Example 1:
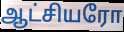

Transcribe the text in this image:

ஆட்சியரோ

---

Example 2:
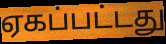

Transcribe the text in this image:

ஏகப்பட்டது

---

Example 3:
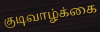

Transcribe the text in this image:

குடிவாழ்க்கை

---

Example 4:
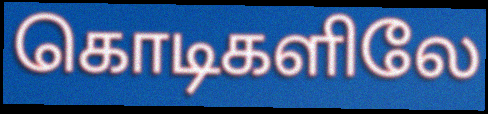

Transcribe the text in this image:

கொடிகளிலே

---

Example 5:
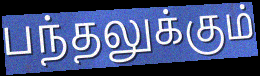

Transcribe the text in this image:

பந்தலுக்கும்